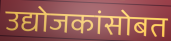
उद्योजकांसोबत